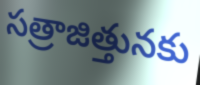
సత్రాజిత్తునకు